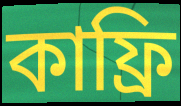
কাফ্রি